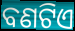
ବଣଟିଏ